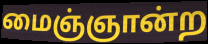
மைஞ்ஞான்ற